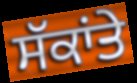
ਸੱਕਾਂਤੇ